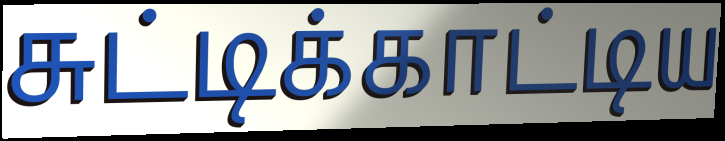
சுட்டிக்காட்டிய